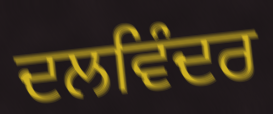
ਦਲਵਿੰਦਰ